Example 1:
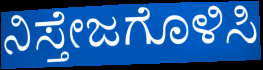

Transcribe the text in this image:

ನಿಸ್ತೇಜಗೊಳಿಸಿ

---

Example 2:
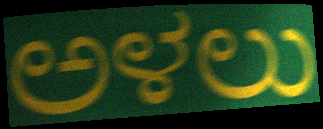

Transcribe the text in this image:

ಅಳಲು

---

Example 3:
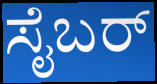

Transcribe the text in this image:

ಸೈಬರ್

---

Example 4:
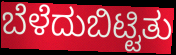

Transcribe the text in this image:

ಬೆಳೆದುಬಿಟ್ಟಿತು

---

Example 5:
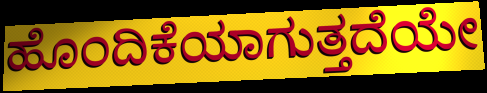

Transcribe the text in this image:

ಹೊಂದಿಕೆಯಾಗುತ್ತದೆಯೇ